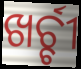
ଖର୍ଚ୍ଚୀ